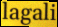
lagali